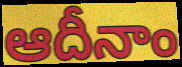
ఆదీనాం